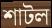
শাটল